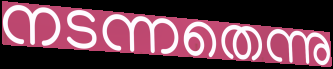
നടന്നതെന്നു